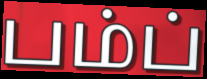
பம்ப்